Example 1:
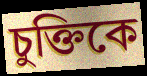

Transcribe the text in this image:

চুক্তিকে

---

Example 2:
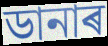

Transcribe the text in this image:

ডানাৰ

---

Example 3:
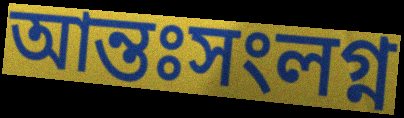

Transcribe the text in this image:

আন্তঃসংলগ্ন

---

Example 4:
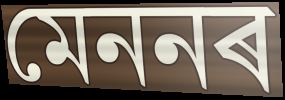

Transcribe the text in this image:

মেননৰ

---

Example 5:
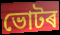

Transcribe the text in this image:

ভোটৰ